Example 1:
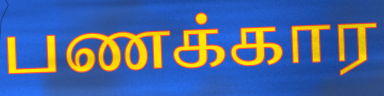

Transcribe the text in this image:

பணக்கார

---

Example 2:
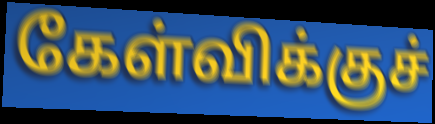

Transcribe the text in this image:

கேள்விக்குச்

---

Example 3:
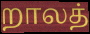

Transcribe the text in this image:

றாலத்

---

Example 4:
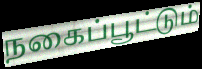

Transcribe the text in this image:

நகைப்பூட்டும்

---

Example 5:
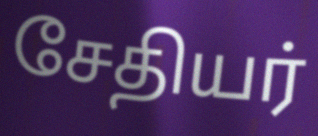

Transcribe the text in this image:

சேதியர்